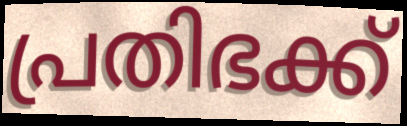
പ്രതിഭക്ക്